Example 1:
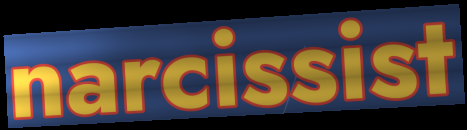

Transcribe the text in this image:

narcissist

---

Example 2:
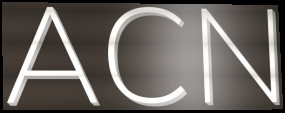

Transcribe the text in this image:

ACN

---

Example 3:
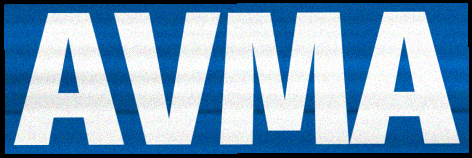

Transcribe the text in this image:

AVMA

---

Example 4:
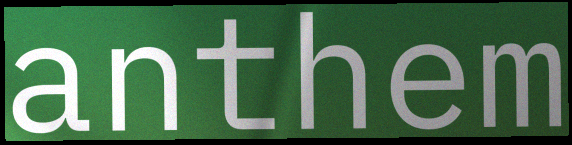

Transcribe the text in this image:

anthem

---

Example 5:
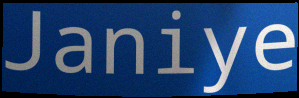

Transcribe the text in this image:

Janiye